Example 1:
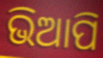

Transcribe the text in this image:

ଭିଆପି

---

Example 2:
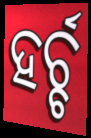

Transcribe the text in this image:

ହର୍ଚ୍ଚ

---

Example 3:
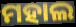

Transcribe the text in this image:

ମହାଲ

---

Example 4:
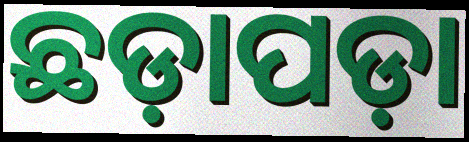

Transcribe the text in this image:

ଛଡ଼ାପଡ଼ା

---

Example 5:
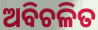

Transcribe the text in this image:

ଅବିଚଳିତ